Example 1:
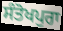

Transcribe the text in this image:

ਸੰਤੋਖਪੁਰਾ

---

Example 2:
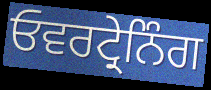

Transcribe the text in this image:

ਓਵਰਟ੍ਰੇਨਿੰਗ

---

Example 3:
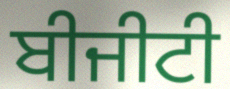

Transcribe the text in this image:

ਬੀਜੀਟੀ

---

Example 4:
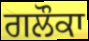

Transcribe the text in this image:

ਗਲੌਕਾ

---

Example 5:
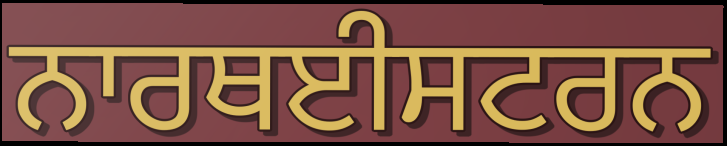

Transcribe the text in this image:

ਨਾਰਥਈਸਟਰਨ